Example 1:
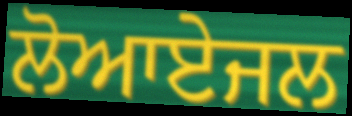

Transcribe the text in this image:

ਲੋਆਏਜਲ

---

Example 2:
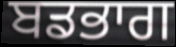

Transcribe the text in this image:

ਬਡਭਾਗ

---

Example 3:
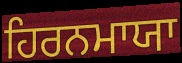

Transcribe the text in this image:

ਹਿਰਨਮਾਯਾ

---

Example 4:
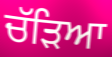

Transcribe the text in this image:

ਚੱੜਿਆ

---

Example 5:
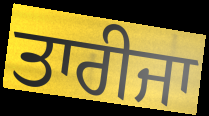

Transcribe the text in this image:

ਤਾਰੀਜਾ